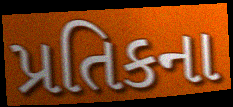
પ્રતિકના